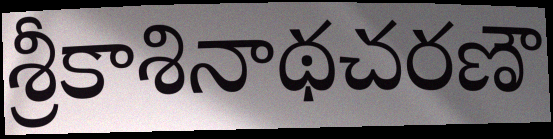
శ్రీకాశినాథచరణౌ